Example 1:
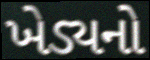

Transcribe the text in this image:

ખેડ્યનો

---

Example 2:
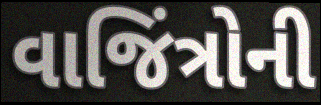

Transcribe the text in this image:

વાજિંત્રોની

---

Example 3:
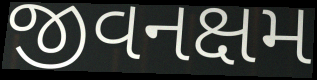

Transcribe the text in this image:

જીવનક્ષમ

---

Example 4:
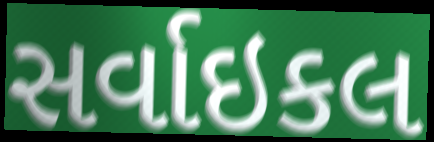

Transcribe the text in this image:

સર્વાઇકલ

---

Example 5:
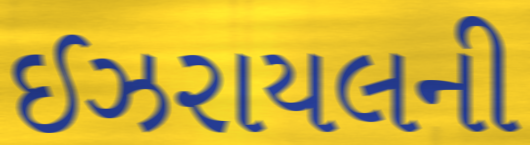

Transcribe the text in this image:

ઈઝરાયલની